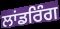
ਲਾਂਡਰਿੰਗ